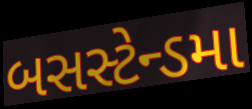
બસસ્ટેન્ડમા